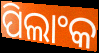
ପିଲାଂକ